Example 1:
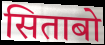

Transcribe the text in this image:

सिताबो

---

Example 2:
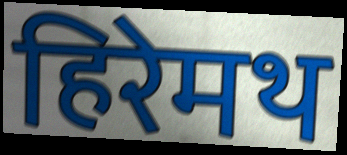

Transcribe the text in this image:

हिरेमथ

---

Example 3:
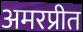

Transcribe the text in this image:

अमरप्रीत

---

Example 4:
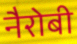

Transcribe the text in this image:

नैरोबी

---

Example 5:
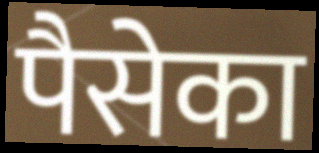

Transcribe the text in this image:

पैसेका